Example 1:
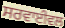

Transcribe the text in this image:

ਸਰਵਾਈਵਲ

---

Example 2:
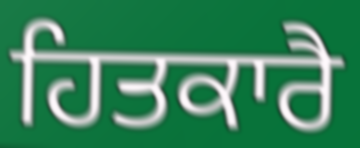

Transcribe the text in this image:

ਹਿਤਕਾਰੈ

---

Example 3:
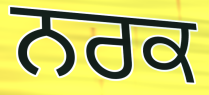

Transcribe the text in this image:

ਨਰਕ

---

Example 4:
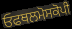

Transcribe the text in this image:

ਓਫਥਲਮੋਸਕੋਪੀ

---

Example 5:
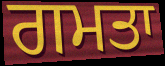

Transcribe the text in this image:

ਗਮਤਾ